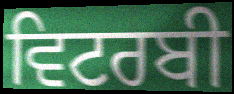
ਵਿਟਰਬੀ